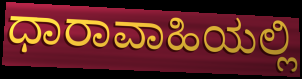
ಧಾರಾವಾಹಿಯಲ್ಲಿ